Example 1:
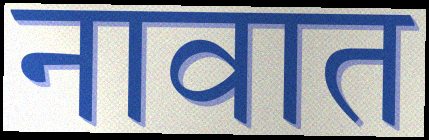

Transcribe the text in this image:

नावात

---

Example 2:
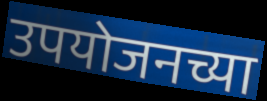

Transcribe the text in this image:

उपयोजनच्या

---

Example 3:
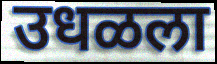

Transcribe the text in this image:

उधळला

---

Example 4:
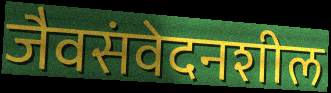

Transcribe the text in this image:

जैवसंवेदनशील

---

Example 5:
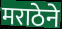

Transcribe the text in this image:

मराठेने